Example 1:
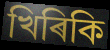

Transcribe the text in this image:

খিৰিকি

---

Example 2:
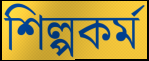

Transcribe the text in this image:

শিল্পকৰ্ম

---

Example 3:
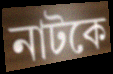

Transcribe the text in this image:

নাটকে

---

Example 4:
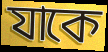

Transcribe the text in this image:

যাকে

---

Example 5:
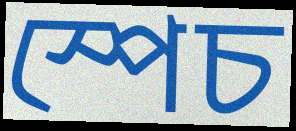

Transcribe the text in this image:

স্পেচ